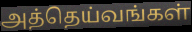
அத்தெய்வங்கள்